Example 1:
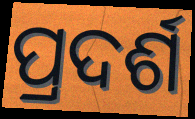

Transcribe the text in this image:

ପ୍ରଦର୍ଶ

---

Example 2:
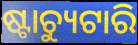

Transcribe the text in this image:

ଷ୍ଟାଚ୍ୟୁଟାରି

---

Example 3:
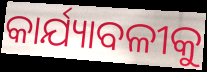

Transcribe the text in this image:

କାର୍ଯ୍ୟାବଳୀକୁ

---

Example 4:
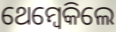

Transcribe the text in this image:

ଥେମ୍ବେକିଲେ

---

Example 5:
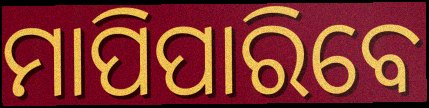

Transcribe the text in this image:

ମାପିପାରିବେ